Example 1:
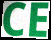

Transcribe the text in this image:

CE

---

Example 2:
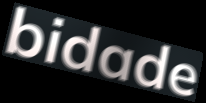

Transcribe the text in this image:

bidade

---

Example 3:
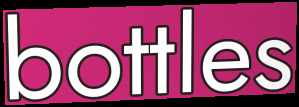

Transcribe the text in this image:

bottles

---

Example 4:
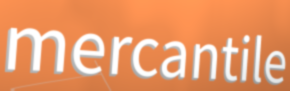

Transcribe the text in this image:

mercantile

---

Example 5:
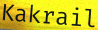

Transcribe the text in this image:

Kakrail